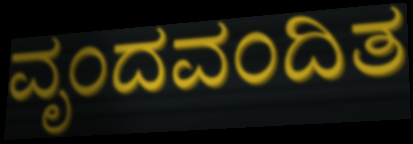
ವೃಂದವಂದಿತ